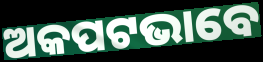
ଅକପଟଭାବେ